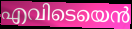
എവിടെയെൻ